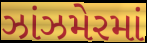
ઝાંઝમેરમાં